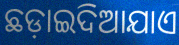
ଛଡ଼ାଇଦିଆଯାଏ